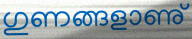
ഗുണങ്ങളാണു്